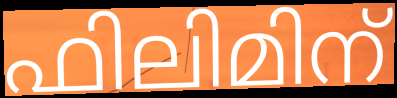
ഫിലിമിന്